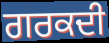
ਗਰਕਦੀ